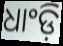
ଧାଂଡ଼ି